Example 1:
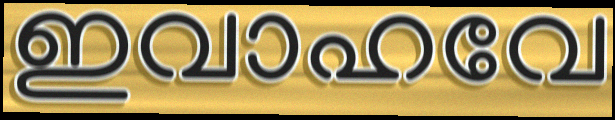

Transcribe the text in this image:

ഇവാഹവേ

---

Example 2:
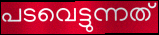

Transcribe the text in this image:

പടവെട്ടുന്നത്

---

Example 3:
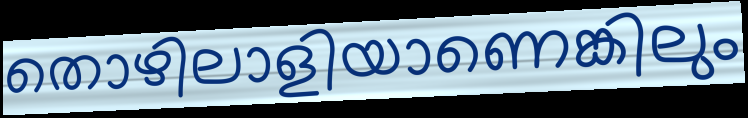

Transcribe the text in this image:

തൊഴിലാളിയാണെങ്കിലും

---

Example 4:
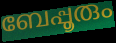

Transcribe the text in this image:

ബേപ്പൂരും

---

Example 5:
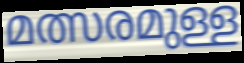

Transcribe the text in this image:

മത്സരമുള്ള